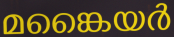
മങ്കൈയർ